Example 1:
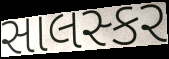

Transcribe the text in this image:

સાલસ્કર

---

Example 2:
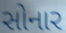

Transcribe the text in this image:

સોનાર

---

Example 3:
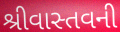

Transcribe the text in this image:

શ્રીવાસ્તવની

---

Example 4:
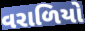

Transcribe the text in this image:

વરાળિયો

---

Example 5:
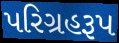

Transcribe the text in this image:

પરિગ્રહરૂપ